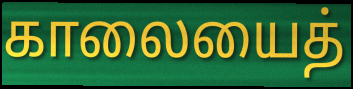
காலையைத்